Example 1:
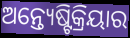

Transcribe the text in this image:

ଅନ୍ତ୍ୟେଷ୍ଟିକ୍ରିୟାର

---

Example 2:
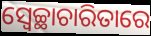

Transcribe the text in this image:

ସ୍ୱେଚ୍ଛାଚାରିତାରେ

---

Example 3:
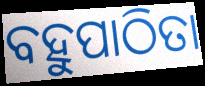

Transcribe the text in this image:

ବହୁପାଠିତା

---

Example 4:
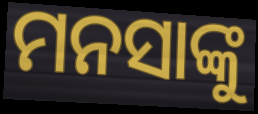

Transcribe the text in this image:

ମନସାଙ୍କୁ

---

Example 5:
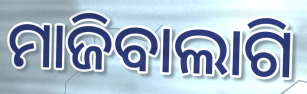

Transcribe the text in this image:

ମାଜିବାଲାଗି